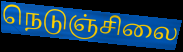
நெடுஞ்சிலை